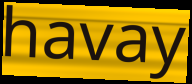
havay